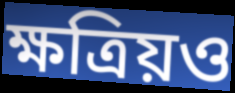
ক্ষত্রিয়ও